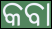
କବା